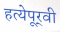
हत्येपूर्वी